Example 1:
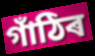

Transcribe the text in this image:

গাঁঠিৰ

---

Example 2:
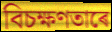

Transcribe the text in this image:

বিচক্ষণতাৰে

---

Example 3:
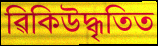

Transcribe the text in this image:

ৱিকিউদ্ধৃতিত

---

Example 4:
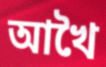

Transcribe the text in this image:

আখৈ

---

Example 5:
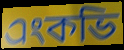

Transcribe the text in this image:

এংকভি